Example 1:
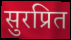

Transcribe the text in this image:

सुरप्रित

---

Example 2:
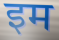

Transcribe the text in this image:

इम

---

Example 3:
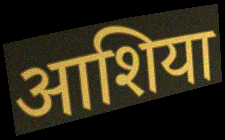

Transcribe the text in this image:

आशिया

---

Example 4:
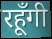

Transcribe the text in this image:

रहूँगी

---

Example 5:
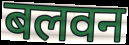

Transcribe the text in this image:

बलवन